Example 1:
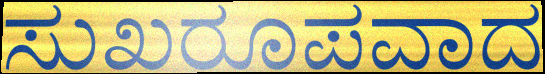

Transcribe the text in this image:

ಸುಖರೂಪವಾದ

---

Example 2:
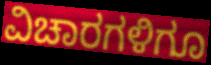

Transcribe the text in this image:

ವಿಚಾರಗಳಿಗೂ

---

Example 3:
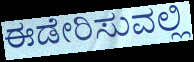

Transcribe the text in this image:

ಈಡೇರಿಸುವಲ್ಲಿ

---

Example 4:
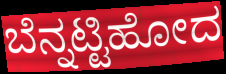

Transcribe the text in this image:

ಬೆನ್ನಟ್ಟಿಹೋದ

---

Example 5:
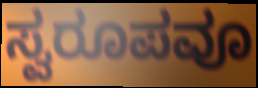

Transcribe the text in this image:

ಸ್ವರೂಪವೂ